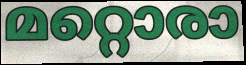
മറ്റൊരാ